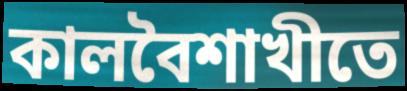
কালবৈশাখীতে